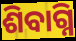
ଶିବାଗ୍ନି